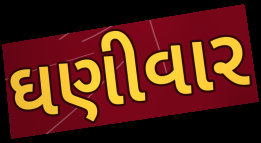
ઘણીવાર